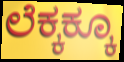
ಲೆಕ್ಕಕ್ಕೂ